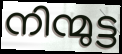
നിന്മുട്ട